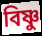
বিষ্ণু